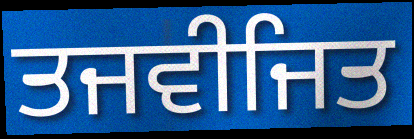
ਤਜਵੀਜਿਤ